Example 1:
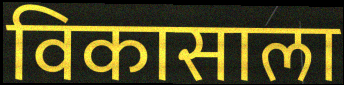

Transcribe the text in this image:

विकासाला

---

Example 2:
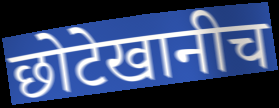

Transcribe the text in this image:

छोटेखानीच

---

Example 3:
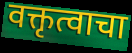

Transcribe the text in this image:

वक्तृत्वाचा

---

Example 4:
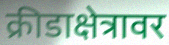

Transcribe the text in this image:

क्रीडाक्षेत्रावर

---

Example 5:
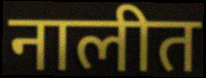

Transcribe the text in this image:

नालीत